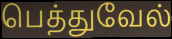
பெத்துவேல்